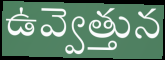
ఉవ్వెత్తున